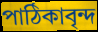
পাঠিকাবৃন্দ